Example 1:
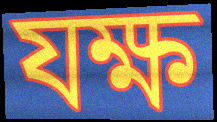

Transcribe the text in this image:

যক্ষ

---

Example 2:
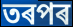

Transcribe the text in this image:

তৰপৰ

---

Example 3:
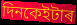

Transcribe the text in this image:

দিনকেইটাৰ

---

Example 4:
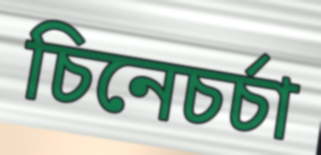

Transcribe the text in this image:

চিনেচৰ্চা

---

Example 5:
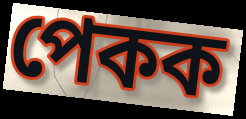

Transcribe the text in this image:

পেকক